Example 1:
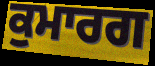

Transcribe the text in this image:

ਕੁਮਾਰਗ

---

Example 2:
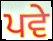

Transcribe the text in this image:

ਪਵੇ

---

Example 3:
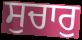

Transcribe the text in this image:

ਸੁਚਾਰੁ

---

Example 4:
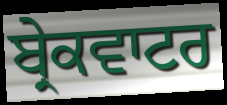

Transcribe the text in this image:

ਬ੍ਰੇਕਵਾਟਰ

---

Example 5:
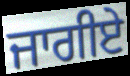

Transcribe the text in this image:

ਜਾਗੀਏ